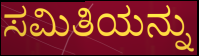
ಸಮಿತಿಯನ್ನು